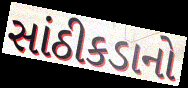
સાંઠીકડાનો